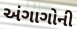
અંગાગોની